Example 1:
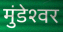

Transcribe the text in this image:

मुंडेश्वर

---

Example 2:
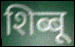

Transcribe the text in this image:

शिब्बू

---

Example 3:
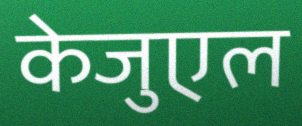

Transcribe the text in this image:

केजुएल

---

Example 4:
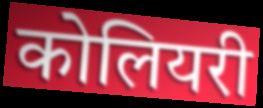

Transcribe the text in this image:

कोलियरी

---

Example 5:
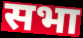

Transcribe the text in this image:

सभा